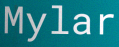
Mylar